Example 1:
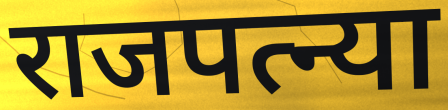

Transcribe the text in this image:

राजपत्न्या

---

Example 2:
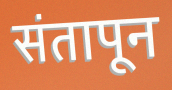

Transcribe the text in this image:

संतापून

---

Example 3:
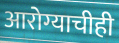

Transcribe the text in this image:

आरोग्याचीही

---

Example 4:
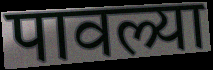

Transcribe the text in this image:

पावल्या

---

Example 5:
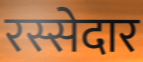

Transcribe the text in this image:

रस्सेदार